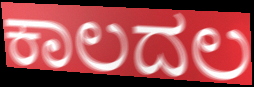
ಕಾಲದಲ